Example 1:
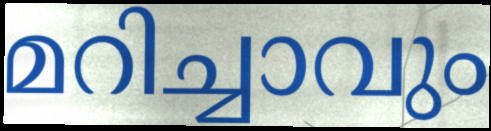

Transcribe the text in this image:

മറിച്ചാവും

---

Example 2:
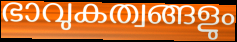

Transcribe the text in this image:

ഭാവുകത്വങ്ങളും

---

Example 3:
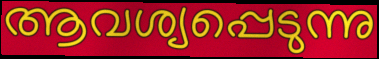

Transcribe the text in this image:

ആവശ്യപ്പെടുന്നു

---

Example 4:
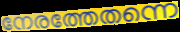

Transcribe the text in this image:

നേരത്തേതന്നെ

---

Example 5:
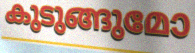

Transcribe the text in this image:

കുടുങ്ങുമോ